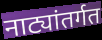
नाट्यांतर्गत